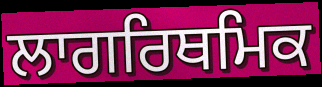
ਲਾਗਰਿਥਮਿਕ